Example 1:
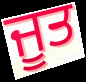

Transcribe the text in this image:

ਜੂਤ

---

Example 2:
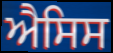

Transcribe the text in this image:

ਐਸਿਸ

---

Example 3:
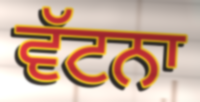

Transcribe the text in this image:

ਵੱਟਨਾ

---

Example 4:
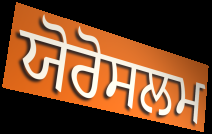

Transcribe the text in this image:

ਯੋਰੋਸਲਮ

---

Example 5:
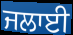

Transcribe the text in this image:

ਜਲਾਈ